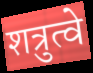
शत्रुत्वे